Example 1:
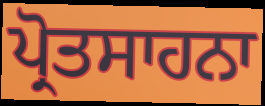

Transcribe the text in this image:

ਪ੍ਰੋਤਸਾਹਨਾ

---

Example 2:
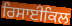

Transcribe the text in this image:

ਰਿਸਾਈਕਿਲ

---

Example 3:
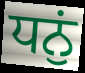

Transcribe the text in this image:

ਧਨੁਂ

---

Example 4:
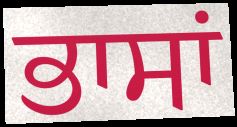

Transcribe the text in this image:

ਭਾਸਾਂ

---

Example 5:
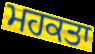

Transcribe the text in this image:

ਮਹਕਤਾ